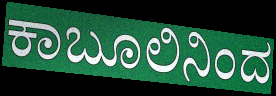
ಕಾಬೂಲಿನಿಂದ